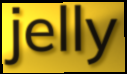
jelly